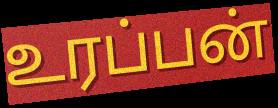
உரப்பன்